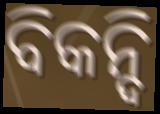
ବିକନ୍ଦି